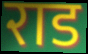
राड